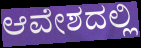
ಆವೇಶದಲ್ಲಿ